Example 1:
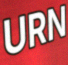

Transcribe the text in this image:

URN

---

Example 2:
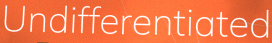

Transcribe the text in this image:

Undifferentiated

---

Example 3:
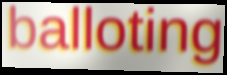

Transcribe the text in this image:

balloting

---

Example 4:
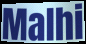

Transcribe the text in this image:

Malhi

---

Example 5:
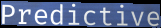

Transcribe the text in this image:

Predictive